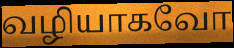
வழியாகவோ